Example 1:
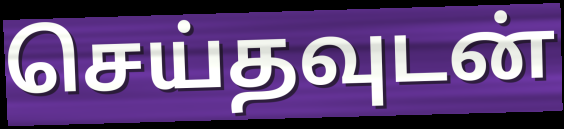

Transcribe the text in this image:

செய்தவுடன்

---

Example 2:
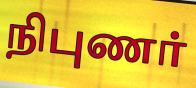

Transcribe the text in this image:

நிபுணர்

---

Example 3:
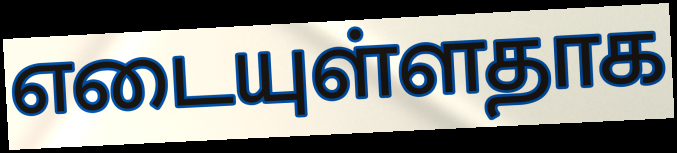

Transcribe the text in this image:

எடையுள்ளதாக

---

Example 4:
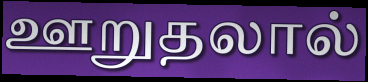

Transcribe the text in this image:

ஊறுதலால்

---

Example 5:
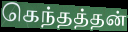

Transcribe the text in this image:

கெந்தத்தன்